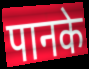
पानके